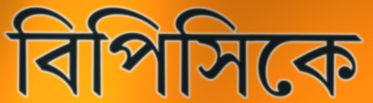
বিপিসিকে